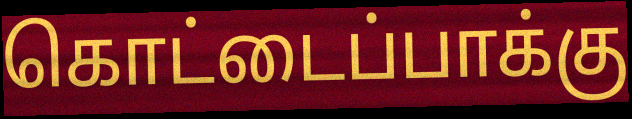
கொட்டைப்பாக்கு